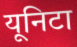
यूनिटा